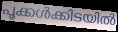
പൂക്കൾക്കിടയിൽ